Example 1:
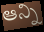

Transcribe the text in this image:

ఆన్ని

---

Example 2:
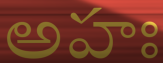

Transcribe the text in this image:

అహః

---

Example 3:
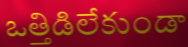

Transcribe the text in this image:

ఒత్తిడిలేకుండా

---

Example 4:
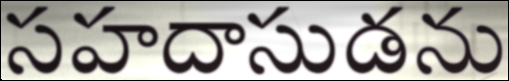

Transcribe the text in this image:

సహదాసుడను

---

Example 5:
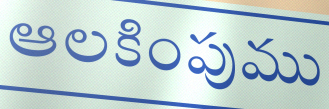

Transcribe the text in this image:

ఆలకింపుము